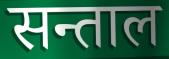
सन्ताल